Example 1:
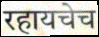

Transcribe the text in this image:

रहायचेच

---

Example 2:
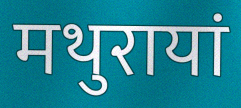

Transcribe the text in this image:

मथुरायां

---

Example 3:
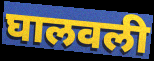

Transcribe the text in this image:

घालवली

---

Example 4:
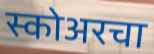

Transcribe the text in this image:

स्कोअरचा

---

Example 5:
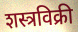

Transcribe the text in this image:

शस्त्रविक्री